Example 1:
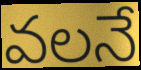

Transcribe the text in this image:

వలనే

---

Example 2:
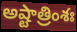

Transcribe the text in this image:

అష్టాత్రింశః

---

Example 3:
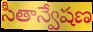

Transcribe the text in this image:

సీతాన్వేషణ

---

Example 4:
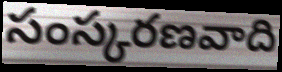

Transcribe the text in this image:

సంస్కరణవాది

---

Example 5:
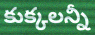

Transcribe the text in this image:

కుక్కలన్నీ